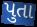
પુતા